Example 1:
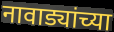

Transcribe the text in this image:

नावाड्यांच्या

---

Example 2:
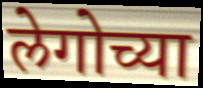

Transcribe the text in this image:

लेगोच्या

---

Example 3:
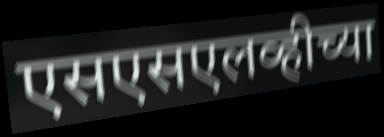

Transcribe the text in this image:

एसएसएलव्हीच्या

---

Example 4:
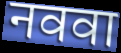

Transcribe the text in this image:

नववा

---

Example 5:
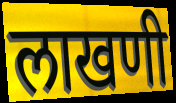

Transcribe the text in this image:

लाखणी